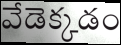
వేడెక్కడం